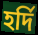
হৰ্দি